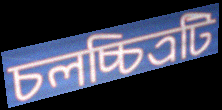
চলচ্চিত্রটি